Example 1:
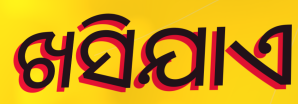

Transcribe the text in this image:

ଖସିଯାଏ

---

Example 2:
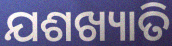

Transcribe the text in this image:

ଯଶଖ୍ୟାତି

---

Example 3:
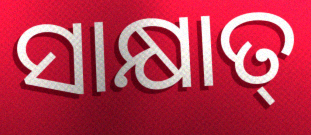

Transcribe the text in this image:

ସାକ୍ଷାତ୍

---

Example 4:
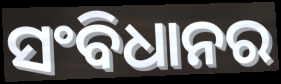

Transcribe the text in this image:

ସଂବିଧାନର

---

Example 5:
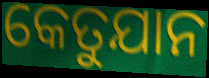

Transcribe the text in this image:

କେତୁଯାନ